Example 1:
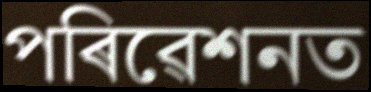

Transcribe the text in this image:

পৰিৱেশনত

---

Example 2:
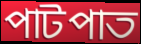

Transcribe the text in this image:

পাটপাত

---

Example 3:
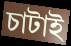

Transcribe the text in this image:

চাটাই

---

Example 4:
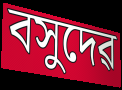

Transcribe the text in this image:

বসুদেৱ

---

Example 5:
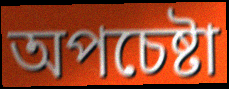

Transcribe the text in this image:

অপচেষ্টা